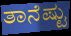
ತಾನೆಷ್ಟು